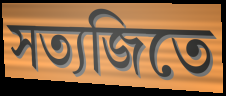
সত্যজিতে